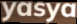
yasya